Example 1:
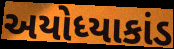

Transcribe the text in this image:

અયોધ્યાકાંડ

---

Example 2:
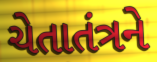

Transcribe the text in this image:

ચેતાતંત્રને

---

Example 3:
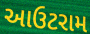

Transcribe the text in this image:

આઉટરામ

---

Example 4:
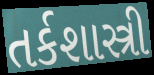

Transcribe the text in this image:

તર્કશાસ્ત્રી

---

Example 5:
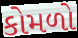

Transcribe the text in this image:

કોમળો